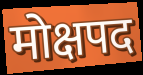
मोक्षपद